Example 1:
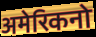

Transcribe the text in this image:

अमेरिकनो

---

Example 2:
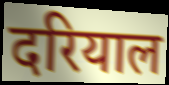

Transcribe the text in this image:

दरियाल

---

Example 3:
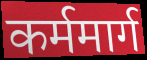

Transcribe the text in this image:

कर्ममार्ग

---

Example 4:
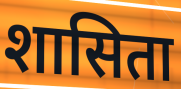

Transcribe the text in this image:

शासिता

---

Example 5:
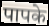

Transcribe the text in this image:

पापके